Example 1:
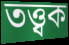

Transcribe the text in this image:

তত্ত্বক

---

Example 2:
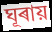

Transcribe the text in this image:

ঘূৰায়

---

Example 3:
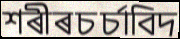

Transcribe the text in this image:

শৰীৰচৰ্চাবিদ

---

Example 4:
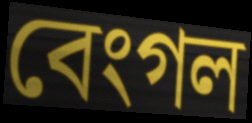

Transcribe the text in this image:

বেংগল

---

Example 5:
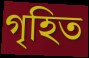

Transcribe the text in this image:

গৃহিত